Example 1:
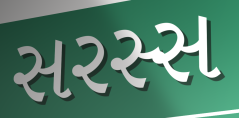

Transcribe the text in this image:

સરસ્સ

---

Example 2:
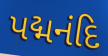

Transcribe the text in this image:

પદ્મનંદિ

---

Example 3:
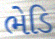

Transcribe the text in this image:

ભેડિ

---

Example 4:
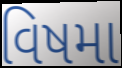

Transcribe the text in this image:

વિષમા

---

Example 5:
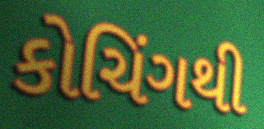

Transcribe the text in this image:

કોચિંગથી